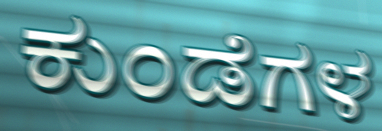
ಕುಂಡೆಗಳ